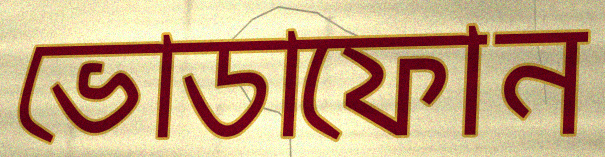
ভোডাফোন